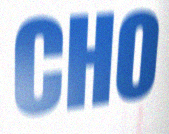
CHO